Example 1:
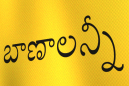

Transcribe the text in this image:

బాణాలన్నీ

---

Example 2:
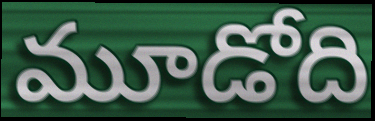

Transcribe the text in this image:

మూడోది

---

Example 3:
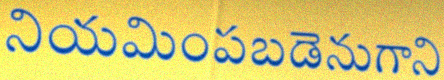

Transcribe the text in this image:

నియమింపబడెనుగాని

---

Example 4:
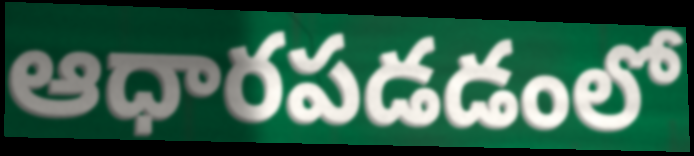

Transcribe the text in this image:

ఆధారపడడంలో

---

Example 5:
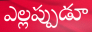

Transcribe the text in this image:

ఎల్లప్పుడూ